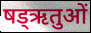
षड्ऋतुओं